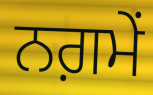
ਨਗ਼ਮੇਂ